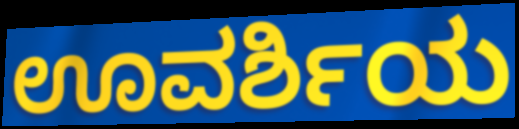
ಊವರ್ಶಿಯ